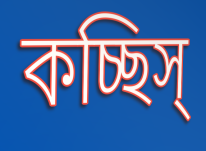
কচ্ছিস্